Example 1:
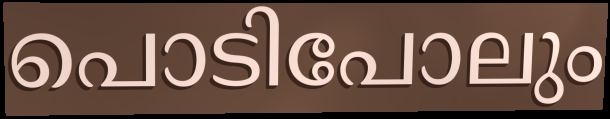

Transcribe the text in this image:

പൊടിപോലും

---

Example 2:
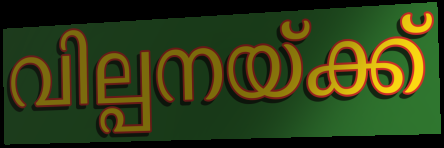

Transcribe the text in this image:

വില്പനയ്ക്ക്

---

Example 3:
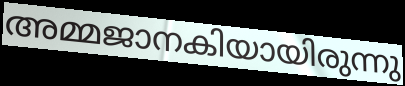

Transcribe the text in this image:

അമ്മജാനകിയായിരുന്നു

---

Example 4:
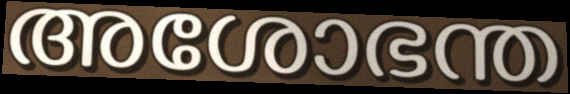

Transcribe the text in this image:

അശോഭന്ത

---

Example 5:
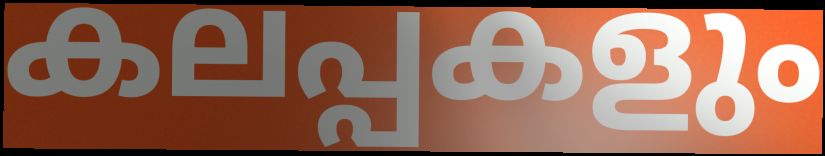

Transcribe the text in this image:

കലപ്പകളും